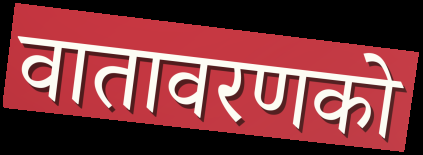
वातावरणको